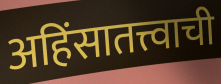
अहिंसातत्त्वाची